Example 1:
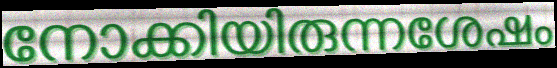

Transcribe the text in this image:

നോക്കിയിരുന്നശേഷം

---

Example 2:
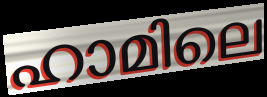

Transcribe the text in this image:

ഹാമിലെ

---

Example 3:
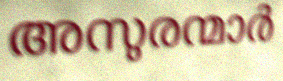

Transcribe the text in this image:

അസുരന്മാർ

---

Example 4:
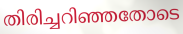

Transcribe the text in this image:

തിരിച്ചറിഞ്ഞതോടെ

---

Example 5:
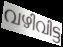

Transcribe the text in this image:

വഴിവിട്ട